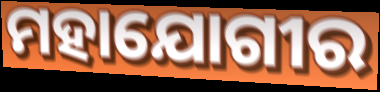
ମହାଯୋଗୀର